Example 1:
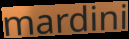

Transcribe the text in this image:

mardini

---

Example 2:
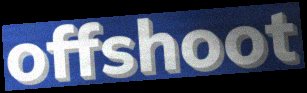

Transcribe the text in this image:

offshoot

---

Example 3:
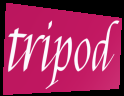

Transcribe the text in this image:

tripod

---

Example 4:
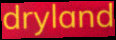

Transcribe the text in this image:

dryland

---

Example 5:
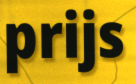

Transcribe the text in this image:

prijs